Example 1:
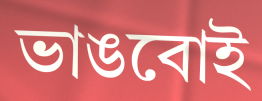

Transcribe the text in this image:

ভাঙবোই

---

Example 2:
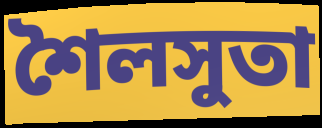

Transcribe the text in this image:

শৈলসুতা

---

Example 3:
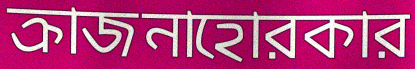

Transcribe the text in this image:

ক্রাজনাহোরকার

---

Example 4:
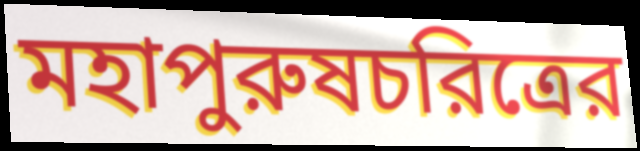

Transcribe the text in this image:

মহাপুরুষচরিত্রের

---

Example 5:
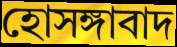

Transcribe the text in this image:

হোসঙ্গাবাদ